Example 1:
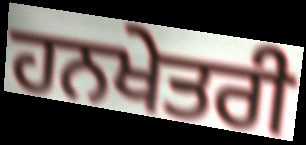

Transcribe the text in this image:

ਹਨਖੇਤਰੀ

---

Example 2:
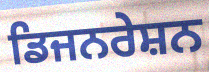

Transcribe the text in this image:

ਡਿਜਨਰੇਸ਼ਨ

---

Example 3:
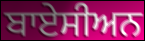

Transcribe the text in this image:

ਬਾਏਸੀਅਨ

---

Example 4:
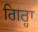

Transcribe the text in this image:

ਗਿਰ੍ਹਾ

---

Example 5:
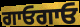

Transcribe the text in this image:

ਗਾਓਗਾਓ